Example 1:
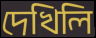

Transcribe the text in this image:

দেখিলি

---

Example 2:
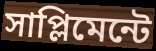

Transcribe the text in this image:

সাপ্লিমেন্টে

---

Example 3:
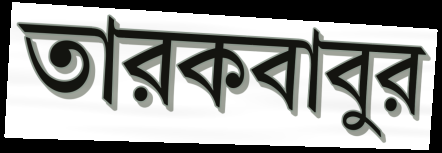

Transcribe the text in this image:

তারকবাবুর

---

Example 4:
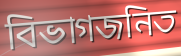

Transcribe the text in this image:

বিভাগজনিত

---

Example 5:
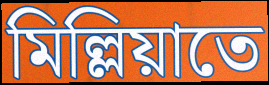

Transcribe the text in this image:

মিল্লিয়াতে